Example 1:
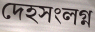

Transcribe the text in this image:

দেহসংলগ্ন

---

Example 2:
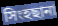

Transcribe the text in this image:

সিংহছানা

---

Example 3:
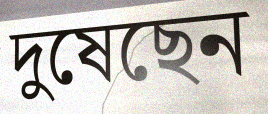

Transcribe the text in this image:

দুষেছেন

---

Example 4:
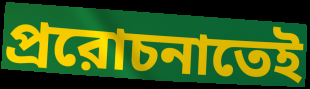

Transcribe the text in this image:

প্ররোচনাতেই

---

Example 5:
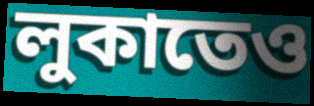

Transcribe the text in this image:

লুকাতেও